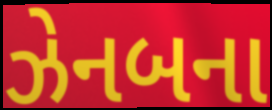
ઝેનબના